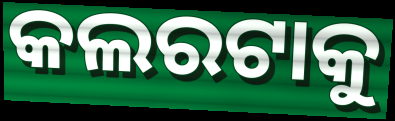
କଲରଟାକୁ